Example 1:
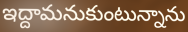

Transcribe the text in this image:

ఇద్దామనుకుంటున్నాను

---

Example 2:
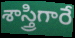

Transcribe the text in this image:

శాస్త్రిగారే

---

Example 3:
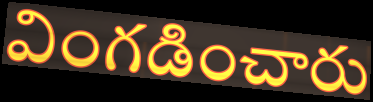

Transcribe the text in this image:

వింగడించారు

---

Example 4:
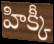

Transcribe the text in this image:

హిక్కీ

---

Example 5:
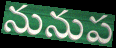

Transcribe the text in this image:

నునుప